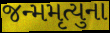
જન્મમૃત્યુના